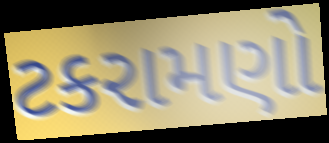
ટકરામણો